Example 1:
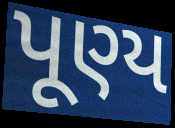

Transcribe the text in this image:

પૂણ્ય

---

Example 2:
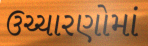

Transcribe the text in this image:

ઉચ્ચારણોમાં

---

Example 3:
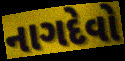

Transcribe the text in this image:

નાગદેવો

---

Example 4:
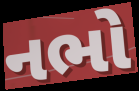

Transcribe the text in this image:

નભો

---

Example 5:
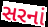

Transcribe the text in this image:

સરનાં